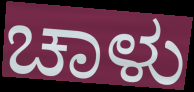
ಚಾಳು